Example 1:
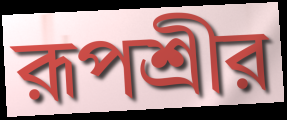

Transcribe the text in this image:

রূপশ্রীর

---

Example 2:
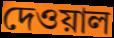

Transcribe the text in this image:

দেওয়াল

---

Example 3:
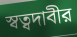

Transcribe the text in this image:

স্বত্বদাবীর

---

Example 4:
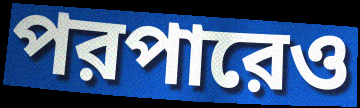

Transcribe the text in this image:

পরপারেও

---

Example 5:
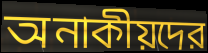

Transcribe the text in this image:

অনাকীয়দের